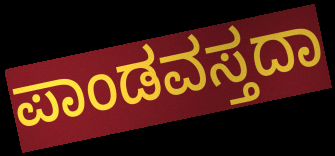
ಪಾಂಡವಸ್ತದಾ